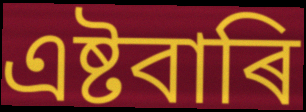
এষ্টবাৰি